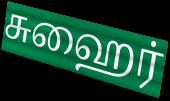
சுஹைர்